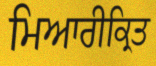
ਮਿਆਰੀਕ੍ਰਿਤ